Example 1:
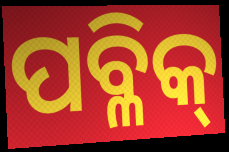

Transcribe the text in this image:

ପବ୍ଳିକ୍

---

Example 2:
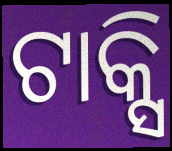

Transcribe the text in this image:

ଟାକ୍ସି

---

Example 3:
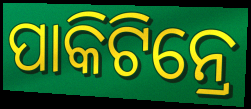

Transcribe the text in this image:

ପାକିଟିନ୍ରେ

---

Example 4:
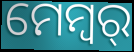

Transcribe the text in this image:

ମେମ୍ବର୍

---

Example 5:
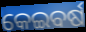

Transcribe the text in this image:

କେଇବର୍ଷ